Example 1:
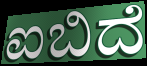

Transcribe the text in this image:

ಐಬಿದೆ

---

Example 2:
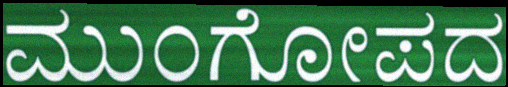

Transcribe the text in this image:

ಮುಂಗೋಪದ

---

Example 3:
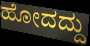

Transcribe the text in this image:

ಹೋದದ್ದು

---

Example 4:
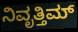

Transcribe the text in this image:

ನಿವೃತ್ತಿಮ್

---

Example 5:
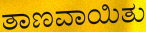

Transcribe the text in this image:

ತಾಣವಾಯಿತು